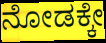
ನೋಡಕ್ಕೇ